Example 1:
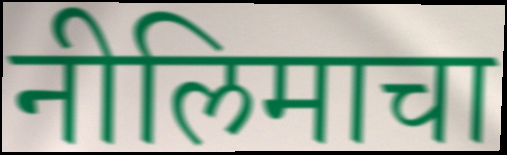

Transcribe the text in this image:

नीलिमाचा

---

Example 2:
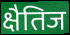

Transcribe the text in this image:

क्षैतिज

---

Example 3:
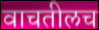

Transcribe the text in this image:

वाचतीलच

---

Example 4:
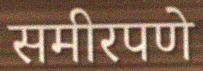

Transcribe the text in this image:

समीरपणे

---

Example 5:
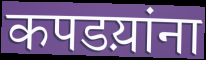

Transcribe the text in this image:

कपडय़ांना